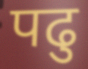
पढु